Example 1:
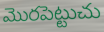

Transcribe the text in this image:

మొరపెట్టుచు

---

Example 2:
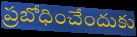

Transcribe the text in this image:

ప్రబోధించేందుకు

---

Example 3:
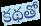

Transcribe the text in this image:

కథతో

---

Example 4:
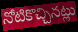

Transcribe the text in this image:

నోటికొచ్చినట్లు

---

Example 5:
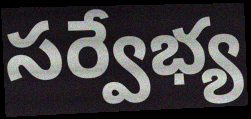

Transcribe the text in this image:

సర్వేభ్య